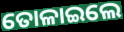
ତୋଳାଇଲେ